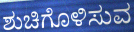
ಶುಚಿಗೊಳಿಸುವ